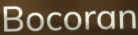
Bocoran